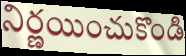
నిర్ణయించుకొండి